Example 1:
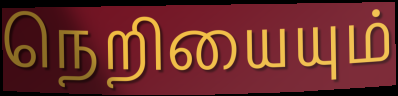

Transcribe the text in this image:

நெறியையும்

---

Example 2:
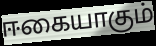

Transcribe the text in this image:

ஈகையாகும்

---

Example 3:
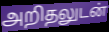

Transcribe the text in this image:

அறிதலுடன்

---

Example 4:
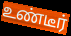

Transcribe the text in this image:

உண்டீர்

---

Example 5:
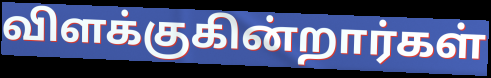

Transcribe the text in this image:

விளக்குகின்றார்கள்